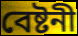
বেষ্টনী